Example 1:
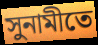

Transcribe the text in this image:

সুনামীতে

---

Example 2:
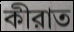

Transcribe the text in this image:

কীরাত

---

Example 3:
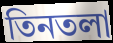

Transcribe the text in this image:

তিনতলা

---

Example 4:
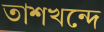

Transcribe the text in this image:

তাশখন্দে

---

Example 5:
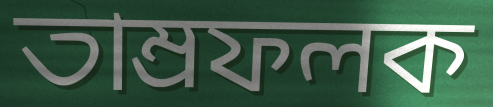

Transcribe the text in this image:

তাম্রফলক